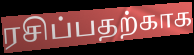
ரசிப்பதற்காக